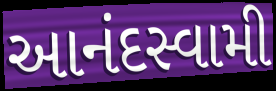
આનંદસ્વામી